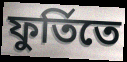
ফুর্তিতে